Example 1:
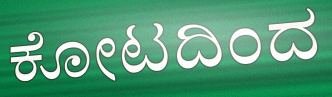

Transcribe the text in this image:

ಕೋಟದಿಂದ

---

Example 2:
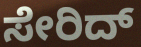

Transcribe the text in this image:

ಸೇರಿದ್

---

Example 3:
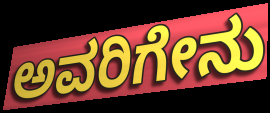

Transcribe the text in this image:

ಅವರಿಗೇನು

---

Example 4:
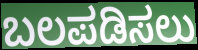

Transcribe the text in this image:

ಬಲಪಡಿಸಲು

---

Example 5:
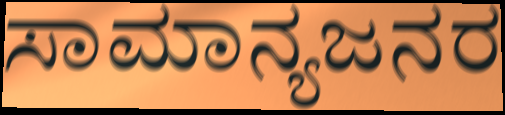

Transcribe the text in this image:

ಸಾಮಾನ್ಯಜನರ